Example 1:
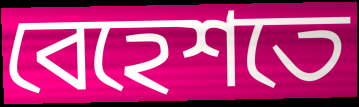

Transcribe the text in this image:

বেহেশতে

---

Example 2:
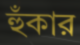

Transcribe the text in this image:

হুঁকার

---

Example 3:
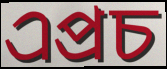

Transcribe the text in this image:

এপ্রচ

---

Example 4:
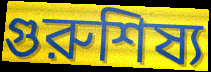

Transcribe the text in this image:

গুরুশিষ্য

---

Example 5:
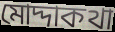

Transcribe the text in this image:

মোদ্দাকথা